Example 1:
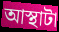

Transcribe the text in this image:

আস্থাটা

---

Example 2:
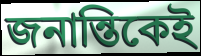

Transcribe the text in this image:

জনান্তিকেই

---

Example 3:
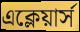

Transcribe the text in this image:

এক্লেয়ার্স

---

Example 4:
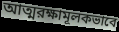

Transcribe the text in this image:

আত্মরক্ষামূলকভাবে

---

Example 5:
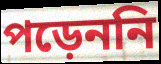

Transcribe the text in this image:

পড়েননি